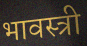
भावस्त्री